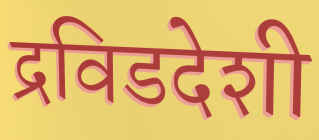
द्रविडदेशी